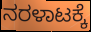
ನರಳಾಟಕ್ಕೆ